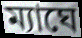
ম্যাঘে